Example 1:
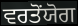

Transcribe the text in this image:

ਵਰਤੋਂਯੋਗ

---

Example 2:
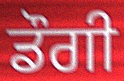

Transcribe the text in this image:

ਡੌਗੀ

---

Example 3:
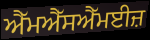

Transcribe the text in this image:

ਐੱਮਐੱਸਐੱਮਈਜ਼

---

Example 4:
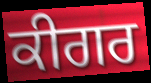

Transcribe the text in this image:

ਕੀਗਰ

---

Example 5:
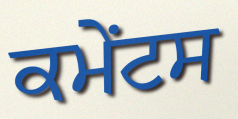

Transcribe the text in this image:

ਕਮੇੰਟਸ